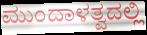
ಮುಂದಾಳತ್ವದಲ್ಲಿ